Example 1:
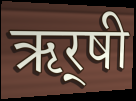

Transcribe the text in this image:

ऋर्षी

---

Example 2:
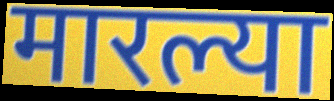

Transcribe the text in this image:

मारल्या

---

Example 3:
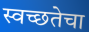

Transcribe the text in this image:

स्वच्छतेचा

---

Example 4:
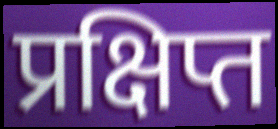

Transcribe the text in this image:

प्रक्षिप्त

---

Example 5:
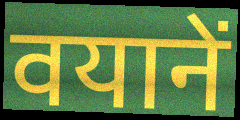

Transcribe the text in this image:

वयानें